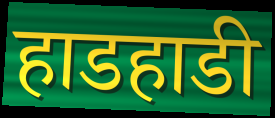
हाडहाडी